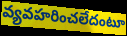
వ్యవహరించలేదంటూ